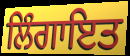
ਲਿੰਗਾਇਤ